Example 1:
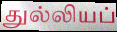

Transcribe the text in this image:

துல்லியப்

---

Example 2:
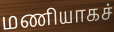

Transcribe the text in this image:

மணியாகச்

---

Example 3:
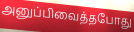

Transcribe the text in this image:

அனுப்பிவைத்தபோது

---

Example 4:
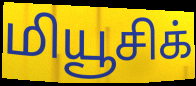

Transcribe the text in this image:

மியூசிக்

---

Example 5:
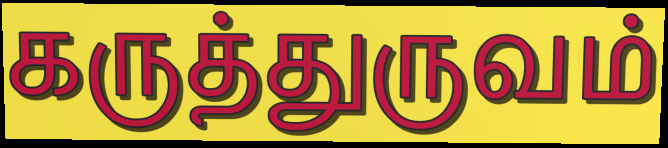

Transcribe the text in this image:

கருத்துருவம்